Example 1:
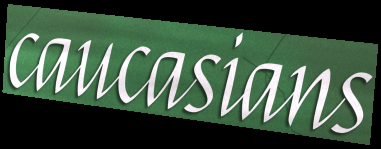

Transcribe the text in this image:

caucasians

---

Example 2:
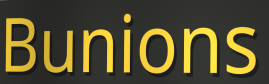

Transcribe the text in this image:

Bunions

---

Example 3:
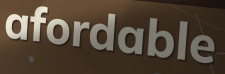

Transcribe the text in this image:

afordable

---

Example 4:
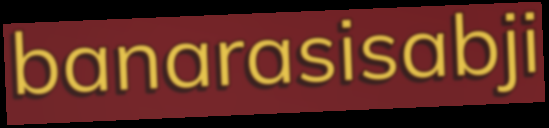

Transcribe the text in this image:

banarasisabji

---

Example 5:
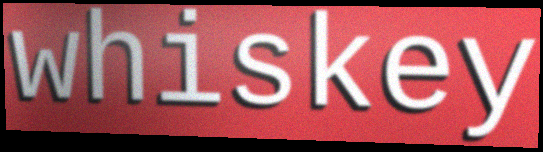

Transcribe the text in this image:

whiskey